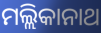
ମଲ୍ଲିକାନାଥ